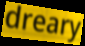
dreary